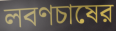
লবণচাষের